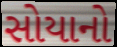
સોયાનો